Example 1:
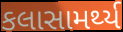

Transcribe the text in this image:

કલાસામર્થ્ય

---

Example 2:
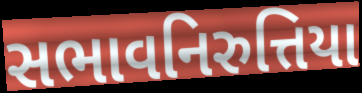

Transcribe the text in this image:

સભાવનિરુત્તિયા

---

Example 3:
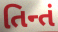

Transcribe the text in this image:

તિન્તં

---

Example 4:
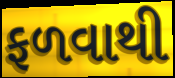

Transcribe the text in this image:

ફળવાથી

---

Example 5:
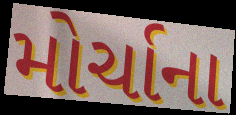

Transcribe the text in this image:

મોર્ચાના